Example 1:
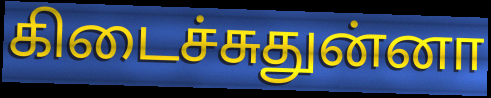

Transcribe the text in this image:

கிடைச்சுதுன்னா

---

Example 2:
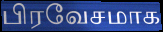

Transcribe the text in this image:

பிரவேசமாக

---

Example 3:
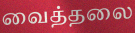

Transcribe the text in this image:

வைத்தலை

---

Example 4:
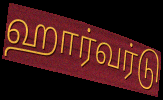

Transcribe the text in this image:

ஹார்வர்டு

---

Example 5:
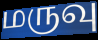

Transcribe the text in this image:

மருவு